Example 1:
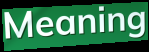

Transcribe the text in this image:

Meaning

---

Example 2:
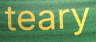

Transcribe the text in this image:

teary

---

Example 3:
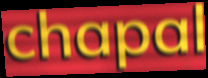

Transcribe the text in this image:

chapal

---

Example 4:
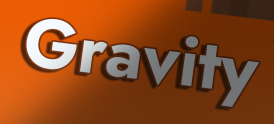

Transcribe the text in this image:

Gravity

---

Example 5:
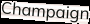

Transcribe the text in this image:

Champaign